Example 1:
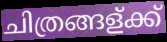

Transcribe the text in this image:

ചിത്രങ്ങള്ക്ക്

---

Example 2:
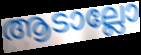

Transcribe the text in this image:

ആടാല്ലോ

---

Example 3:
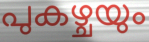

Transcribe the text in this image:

പുകഴ്ചയും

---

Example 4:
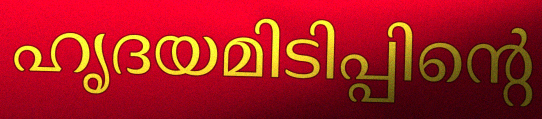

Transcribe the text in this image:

ഹൃദയമിടിപ്പിന്റെ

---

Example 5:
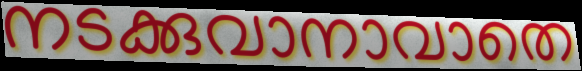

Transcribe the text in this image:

നടക്കുവാനാവാതെ